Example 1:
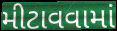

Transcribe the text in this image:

મીટાવવામાં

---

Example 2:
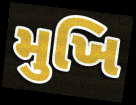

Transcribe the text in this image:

મુખિ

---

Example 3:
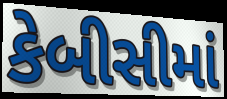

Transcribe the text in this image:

કેબીસીમાં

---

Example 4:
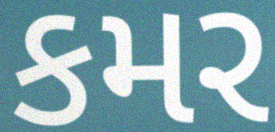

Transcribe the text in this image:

કમર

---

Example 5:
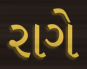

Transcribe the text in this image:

રાગે